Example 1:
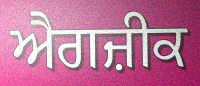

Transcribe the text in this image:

ਐਗਜ਼ੀਕ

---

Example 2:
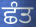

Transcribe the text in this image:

ਛੰਤ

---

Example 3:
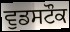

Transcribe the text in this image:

ਵੁਡਸਟੌਕ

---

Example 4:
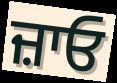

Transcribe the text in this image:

ਜ਼ਾਓ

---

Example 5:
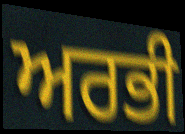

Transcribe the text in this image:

ਅਰਭੀ